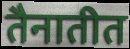
तैनातीत